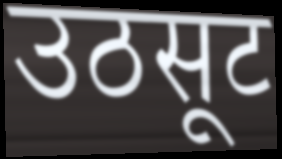
उठसूट